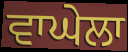
ਵਾਘੇਲਾ